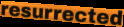
resurrected